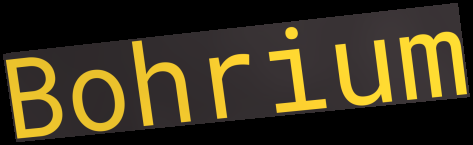
Bohrium